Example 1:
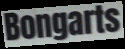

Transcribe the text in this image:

Bongarts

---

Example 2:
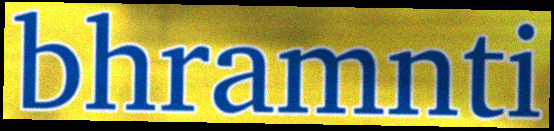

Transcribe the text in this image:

bhramnti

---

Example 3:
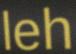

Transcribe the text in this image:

leh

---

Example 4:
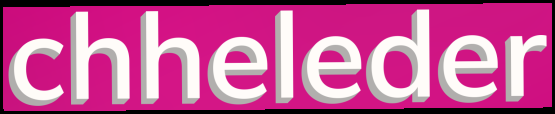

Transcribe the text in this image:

chheleder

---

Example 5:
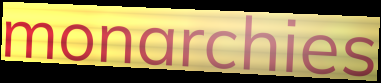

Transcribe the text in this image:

monarchies